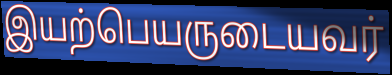
இயற்பெயருடையவர்